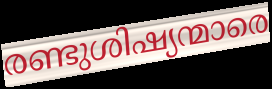
രണ്ടുശിഷ്യന്മാരെ